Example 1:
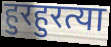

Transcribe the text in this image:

हुरहुरत्या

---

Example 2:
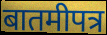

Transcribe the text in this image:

बातमीपत्र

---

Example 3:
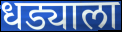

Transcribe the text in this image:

धड्याला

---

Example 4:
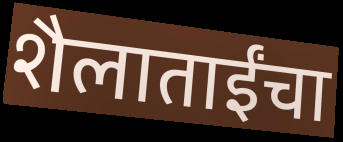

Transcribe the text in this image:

शैलाताईंचा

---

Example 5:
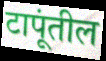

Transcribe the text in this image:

टापूंतील